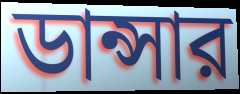
ডান্সার